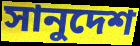
সানুদেশ